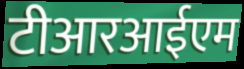
टीआरआईएम